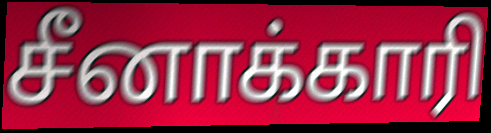
சீனாக்காரி